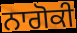
ਨਾਗੋਕੀ